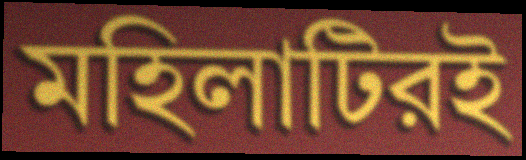
মহিলাটিরই